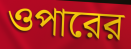
ওপারের